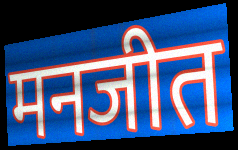
मनजीत